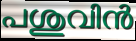
പശുവിൻ